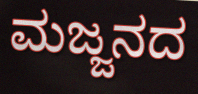
ಮಜ್ಜನದ